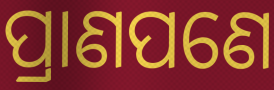
ପ୍ରାଣପଣେ